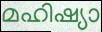
മഹിഷ്യാ